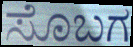
ಸೊಬಗ